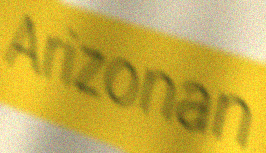
Arizonan